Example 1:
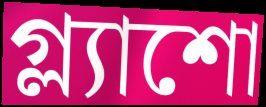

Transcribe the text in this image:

গ্ল্যাশো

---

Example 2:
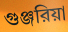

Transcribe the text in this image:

গুঞ্জরিয়া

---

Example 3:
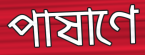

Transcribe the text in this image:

পাষাণে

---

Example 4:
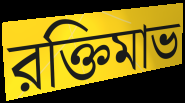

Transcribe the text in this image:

রক্তিমাভ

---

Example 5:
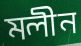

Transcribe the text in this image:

মলীন